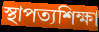
স্থাপত্যশিক্ষা